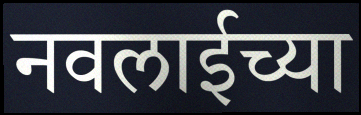
नवलाईच्या